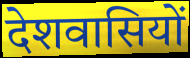
देशवासियों